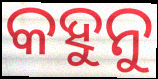
କହୁନୁ